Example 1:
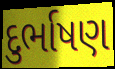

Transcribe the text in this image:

દુર્ભાષણ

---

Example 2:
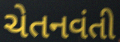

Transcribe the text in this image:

ચેતનવંતી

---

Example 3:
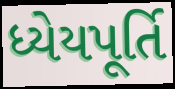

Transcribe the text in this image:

ધ્યેયપૂર્તિ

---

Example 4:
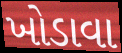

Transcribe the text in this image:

ખોડાવા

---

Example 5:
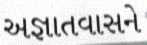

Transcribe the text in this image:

અજ્ઞાતવાસને